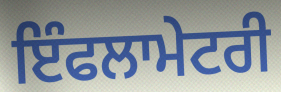
ਇੰਫਲਾਮੇਟਰੀ